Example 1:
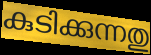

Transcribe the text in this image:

കുടിക്കുന്നതു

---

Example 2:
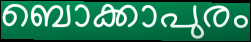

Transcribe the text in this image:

ബൊക്കാപുരം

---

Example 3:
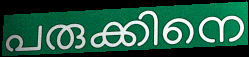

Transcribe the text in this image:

പരുക്കിനെ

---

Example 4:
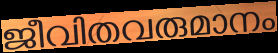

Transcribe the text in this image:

ജീവിതവരുമാനം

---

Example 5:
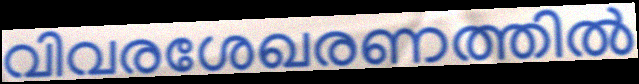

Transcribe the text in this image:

വിവരശേഖരണത്തിൽ